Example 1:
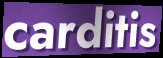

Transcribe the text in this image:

carditis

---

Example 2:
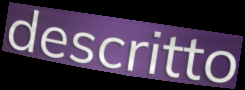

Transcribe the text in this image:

descritto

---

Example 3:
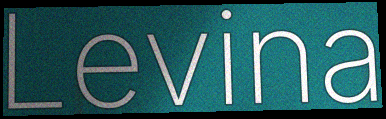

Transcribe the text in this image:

Levina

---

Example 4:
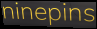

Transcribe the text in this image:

ninepins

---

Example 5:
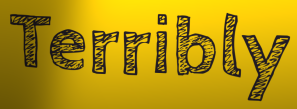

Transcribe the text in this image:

Terribly